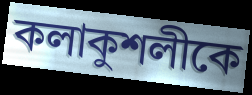
কলাকুশলীকে